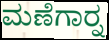
ಮಣೆಗಾರ್‍ನ